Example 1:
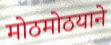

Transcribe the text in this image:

मोठमोठयाने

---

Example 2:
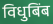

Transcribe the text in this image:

विधुबिंब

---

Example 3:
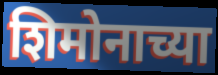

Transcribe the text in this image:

शिमोनाच्या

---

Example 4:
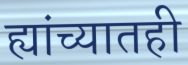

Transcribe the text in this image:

ह्यांच्यातही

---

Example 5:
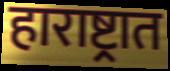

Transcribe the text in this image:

हाराष्ट्रात